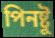
পিনষ্টু